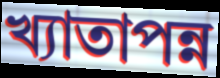
খ্যাতাপন্ন